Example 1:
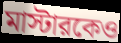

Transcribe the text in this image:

মাস্টারকেও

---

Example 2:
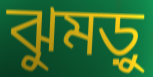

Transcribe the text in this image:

ঝুমড়ু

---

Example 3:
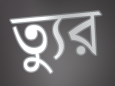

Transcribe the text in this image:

ত্যুর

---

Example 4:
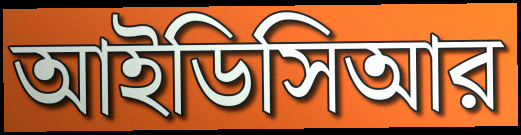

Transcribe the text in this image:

আইডিসিআর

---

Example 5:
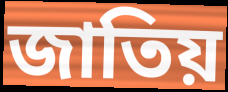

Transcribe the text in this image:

জাতিয়